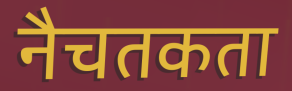
नैचतकता